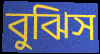
বুঝিস